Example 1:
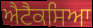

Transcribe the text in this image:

ਐਟੈਕਸਿਆ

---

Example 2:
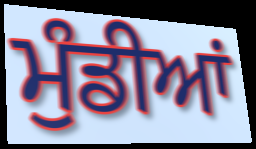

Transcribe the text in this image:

ਮੁੰਡੀਆਂ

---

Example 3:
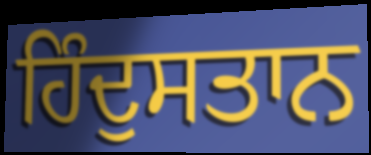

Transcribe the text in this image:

ਹਿੰਦੁਸਤਾਨ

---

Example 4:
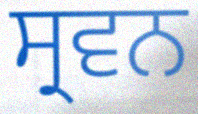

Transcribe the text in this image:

ਸ੍ਰਵਨ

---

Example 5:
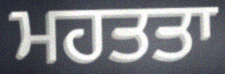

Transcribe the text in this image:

ਮਹਤਤਾ